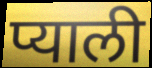
प्याली